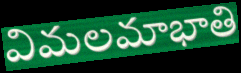
విమలమాభాతి